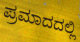
ಪ್ರಮಾದದಲ್ಲಿ